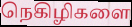
நெகிழிகளை